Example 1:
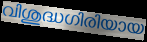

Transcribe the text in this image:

വിശുദ്ധഗിരിയായ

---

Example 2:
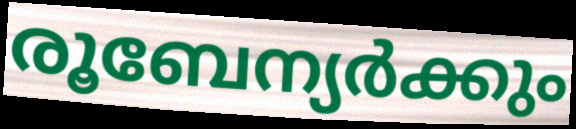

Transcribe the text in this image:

രൂബേന്യർക്കും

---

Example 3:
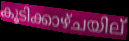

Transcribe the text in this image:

കൂടിക്കാഴ്ചയില്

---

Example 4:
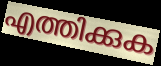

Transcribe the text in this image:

എത്തിക്കുക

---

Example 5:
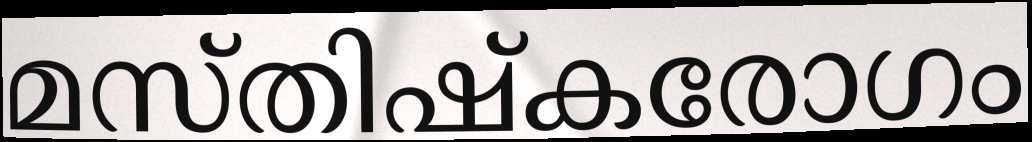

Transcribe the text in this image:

മസ്തിഷ്കരോഗം